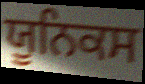
ਯੂਨਿਕਸ